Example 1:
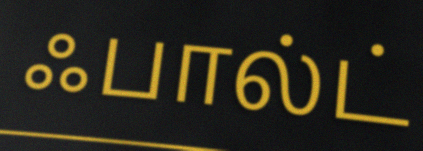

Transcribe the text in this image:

ஃபால்ட்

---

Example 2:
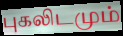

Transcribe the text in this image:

புகலிடமும்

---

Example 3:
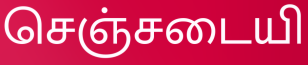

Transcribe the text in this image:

செஞ்சடையி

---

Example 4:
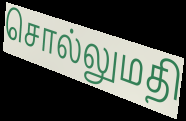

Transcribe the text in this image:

சொல்லுமதி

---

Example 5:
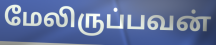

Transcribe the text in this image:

மேலிருப்பவன்